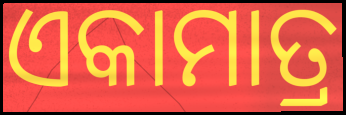
ଏକାମାତ୍ର